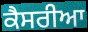
ਕੈਸਰੀਆ